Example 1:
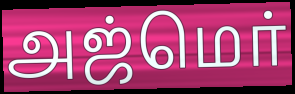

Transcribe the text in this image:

அஜ்மெர்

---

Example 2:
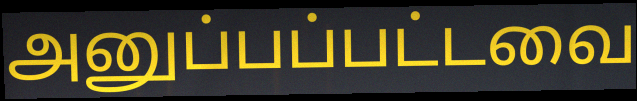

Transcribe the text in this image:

அனுப்பப்பட்டவை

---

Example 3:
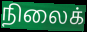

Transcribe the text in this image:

நிலைக்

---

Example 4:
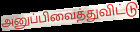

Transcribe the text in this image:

அனுப்பிவைத்துவிட்டு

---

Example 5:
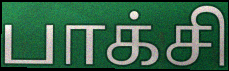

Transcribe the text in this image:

பாக்சி